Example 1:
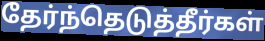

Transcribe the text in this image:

தேர்ந்தெடுத்தீர்கள்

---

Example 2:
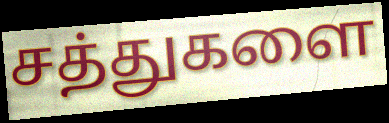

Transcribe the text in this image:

சத்துகளை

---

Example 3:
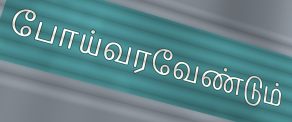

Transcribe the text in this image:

போய்வரவேண்டும்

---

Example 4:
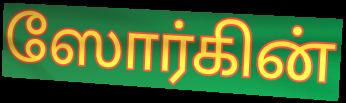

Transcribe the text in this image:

ஸோர்கின்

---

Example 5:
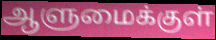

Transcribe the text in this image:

ஆளுமைக்குள்